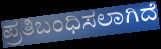
ಪ್ರತಿಬಂಧಿಸಲಾಗಿದೆ